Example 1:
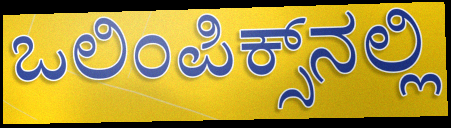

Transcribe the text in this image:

ಒಲಿಂಪಿಕ್ಸ್‌ನಲ್ಲಿ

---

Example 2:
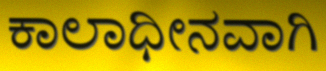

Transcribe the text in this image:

ಕಾಲಾಧೀನವಾಗಿ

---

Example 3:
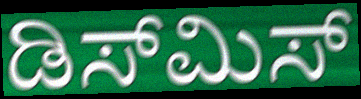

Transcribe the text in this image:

ಡಿಸ್‌ಮಿಸ್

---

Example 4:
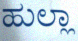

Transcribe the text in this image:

ಹುಲ್ಲಾ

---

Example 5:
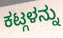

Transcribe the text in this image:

ಕಟ್ಗಳನ್ನು